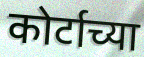
कोर्टाच्या